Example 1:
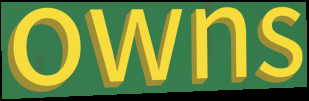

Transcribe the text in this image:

owns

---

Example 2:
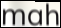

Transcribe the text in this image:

mah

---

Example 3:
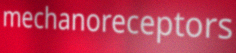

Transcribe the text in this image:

mechanoreceptors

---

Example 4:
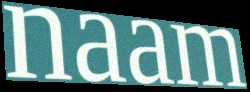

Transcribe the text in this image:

naam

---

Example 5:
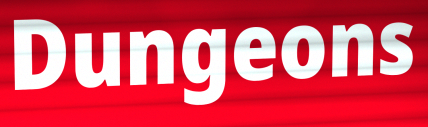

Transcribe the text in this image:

Dungeons